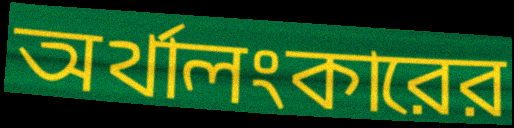
অর্থালংকারের